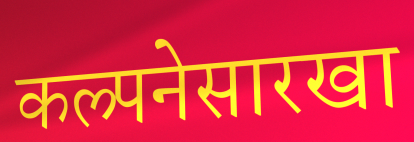
कल्पनेसारखा